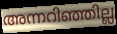
അന്നറിഞ്ഞില്ല